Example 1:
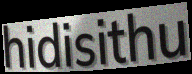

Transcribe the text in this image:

hidisithu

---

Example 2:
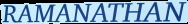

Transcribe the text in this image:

RAMANATHAN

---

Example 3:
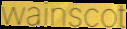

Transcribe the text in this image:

wainscot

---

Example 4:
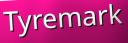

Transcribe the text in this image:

Tyremark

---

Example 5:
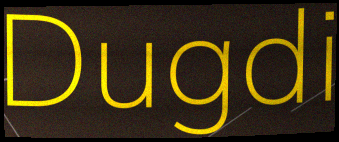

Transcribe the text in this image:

Dugdi